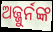
ଅଜ୍ଜୁର୍ନଙ୍କ